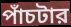
পাঁচটার